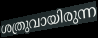
ശത്രുവായിരുന്ന